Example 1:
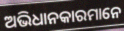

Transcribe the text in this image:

ଅଭିଧାନକାରମାନେ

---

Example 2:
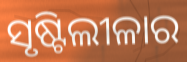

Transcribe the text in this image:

ସୃଷ୍ଟିଲୀଳାର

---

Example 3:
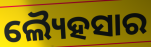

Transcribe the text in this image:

ଲ୍ୟୈହସାର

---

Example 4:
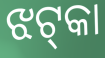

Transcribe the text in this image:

ଝଟ୍‍କା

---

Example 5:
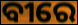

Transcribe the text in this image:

ବୀରେ